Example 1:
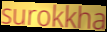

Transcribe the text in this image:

surokkha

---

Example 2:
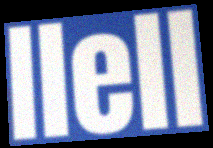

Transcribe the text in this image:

Ilell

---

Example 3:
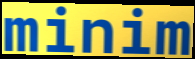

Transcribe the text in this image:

minim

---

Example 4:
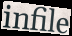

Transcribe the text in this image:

infile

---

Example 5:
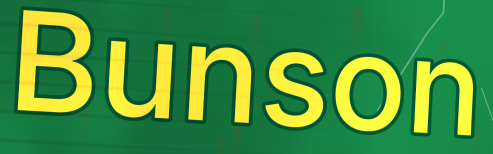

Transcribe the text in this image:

Bunson